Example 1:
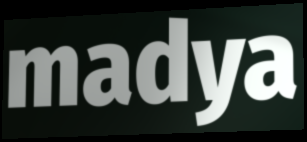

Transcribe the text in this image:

madya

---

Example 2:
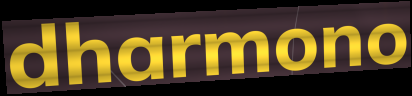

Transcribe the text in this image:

dharmono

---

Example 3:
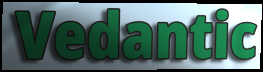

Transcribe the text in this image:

Vedantic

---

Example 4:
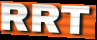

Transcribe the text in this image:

RRT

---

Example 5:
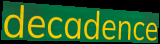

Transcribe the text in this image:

decadence